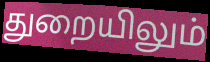
துறையிலும்